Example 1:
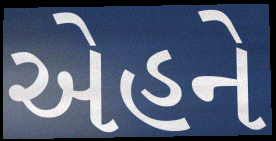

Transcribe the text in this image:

એહને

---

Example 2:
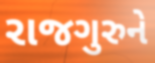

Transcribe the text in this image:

રાજગુરુને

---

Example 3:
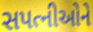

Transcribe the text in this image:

સપત્નીઓને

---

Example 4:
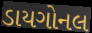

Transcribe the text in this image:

ડાયગોનલ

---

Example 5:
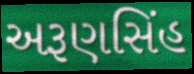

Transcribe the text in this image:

અરૂણસિંહ